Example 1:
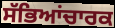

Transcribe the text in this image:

ਸੱਭਿਆਂਚਾਰਕ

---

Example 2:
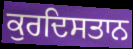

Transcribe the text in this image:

ਕੁਰਦਿਸਤਾਨ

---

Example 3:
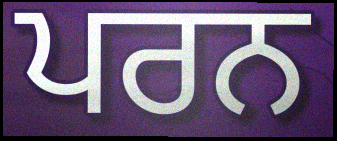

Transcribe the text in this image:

ਪਰਨ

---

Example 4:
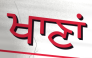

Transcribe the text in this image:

ਖਾਣਾਂ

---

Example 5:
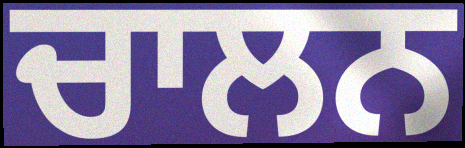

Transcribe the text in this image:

ਚਾਲਨ